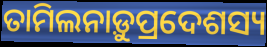
ତାମିଲନାଡ଼ୁପ୍ରଦେଶସ୍ୟ